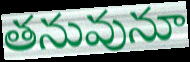
తనువునూ